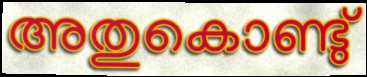
അതുകൊണ്ടു്